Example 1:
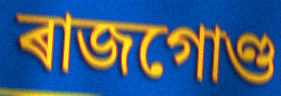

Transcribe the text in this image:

ৰাজগোণ্ড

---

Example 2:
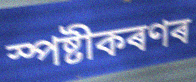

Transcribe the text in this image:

স্পষ্টীকৰণৰ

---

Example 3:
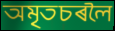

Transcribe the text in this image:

অমৃতচৰলৈ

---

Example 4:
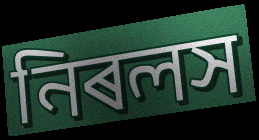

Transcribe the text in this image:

নিৰলস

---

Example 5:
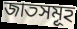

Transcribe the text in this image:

জাতসমূহ